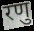
रणु